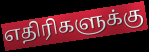
எதிரிகளுக்கு